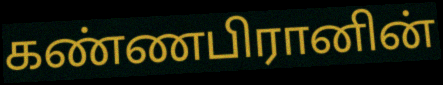
கண்ணபிரானின்